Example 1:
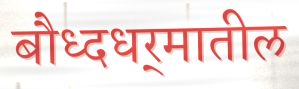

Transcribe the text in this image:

बौध्दधर्मातील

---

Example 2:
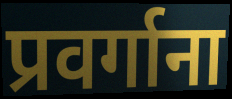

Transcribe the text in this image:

प्रवर्गाना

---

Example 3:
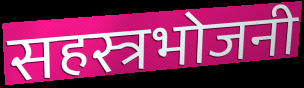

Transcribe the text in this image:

सहस्त्रभोजनी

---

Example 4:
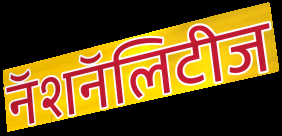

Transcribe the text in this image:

नॅशनॅलिटीज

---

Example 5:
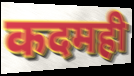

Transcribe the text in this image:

कदमही